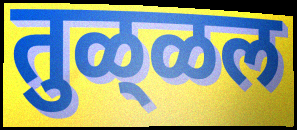
तुळ्‌ळल